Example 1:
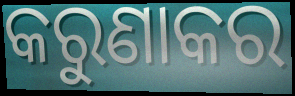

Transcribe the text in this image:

କରୁଣାକର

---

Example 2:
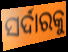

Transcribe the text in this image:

ସର୍ଦାରକୁ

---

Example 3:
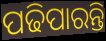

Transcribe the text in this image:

ପଢିପାରନ୍ତି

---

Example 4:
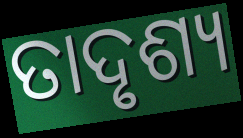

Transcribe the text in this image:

ତାଦୃଶ୍ୟ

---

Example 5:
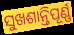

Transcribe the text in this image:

ସୁଖଶାନ୍ତିପୂର୍ଣ୍ଣ